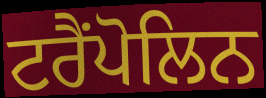
ਟਰੈਂਪੋਲਿਨ